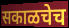
सकाळचेच